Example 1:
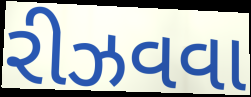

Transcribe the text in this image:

રીઝવવા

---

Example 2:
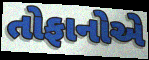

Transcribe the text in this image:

તોફાનોએ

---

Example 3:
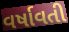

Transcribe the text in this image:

વર્ષાવતી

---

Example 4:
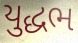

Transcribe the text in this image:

યુદ્ધભ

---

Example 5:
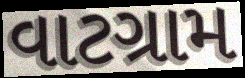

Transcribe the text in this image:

વાટગ્રામ